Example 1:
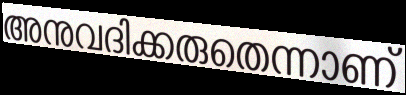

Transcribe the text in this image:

അനുവദിക്കരുതെന്നാണ്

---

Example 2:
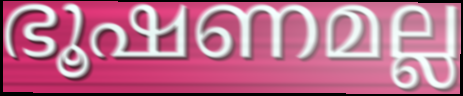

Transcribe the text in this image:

ഭൂഷണമല്ല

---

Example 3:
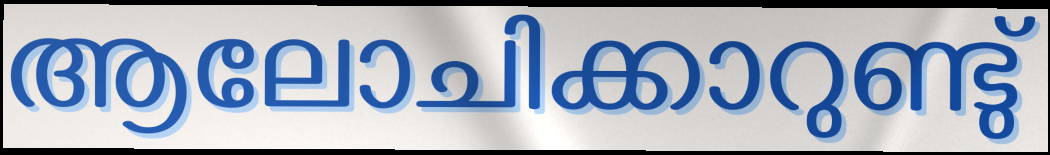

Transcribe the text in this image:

ആലോചിക്കാറുണ്ടു്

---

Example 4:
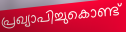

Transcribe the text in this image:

പ്രഖ്യാപിച്ചുകൊണ്ട്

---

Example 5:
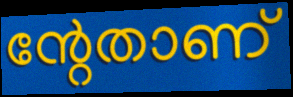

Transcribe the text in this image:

ന്റേതാണ്